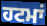
ਹਟਮਾਂ